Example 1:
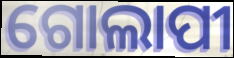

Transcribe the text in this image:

ଗୋଲାପୀ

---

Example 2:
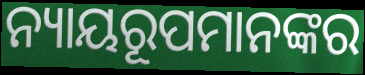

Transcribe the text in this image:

ନ୍ୟାୟରୂପମାନଙ୍କର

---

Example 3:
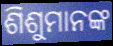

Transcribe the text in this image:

ଶିଶୁମାନଙ୍କ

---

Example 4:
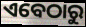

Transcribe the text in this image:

ଏବେଠାରୁ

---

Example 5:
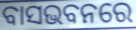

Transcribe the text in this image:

ବାସଭବନରେ